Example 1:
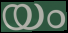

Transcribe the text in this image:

യം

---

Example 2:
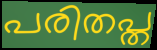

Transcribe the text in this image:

പരിതപ്ത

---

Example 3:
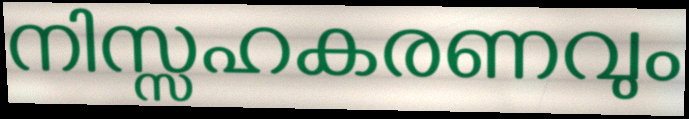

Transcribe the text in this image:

നിസ്സഹകരണവും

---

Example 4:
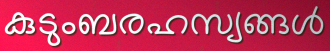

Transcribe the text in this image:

കുടുംബരഹസ്യങ്ങൾ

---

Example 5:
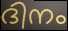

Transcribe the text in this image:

ദിനം